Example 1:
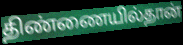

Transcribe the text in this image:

திண்ணையில்தான்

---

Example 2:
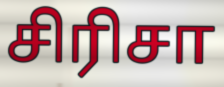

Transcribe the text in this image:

சிரிசா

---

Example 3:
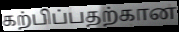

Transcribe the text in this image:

கற்பிப்பதற்கான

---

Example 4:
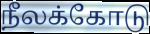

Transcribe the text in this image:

நீலக்கோடு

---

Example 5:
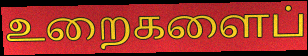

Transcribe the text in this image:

உறைகளைப்